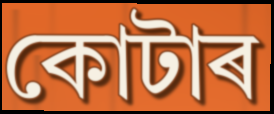
কোটাৰ